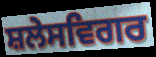
ਸ਼ਲੇਸਵਿਗਰ